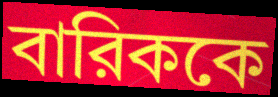
বারিককে